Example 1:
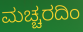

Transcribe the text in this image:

ಮಚ್ಚರದಿಂ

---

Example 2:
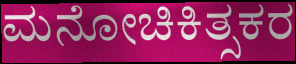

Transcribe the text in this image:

ಮನೋಚಿಕಿತ್ಸಕರ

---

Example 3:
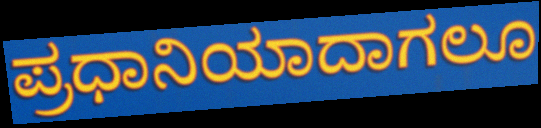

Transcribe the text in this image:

ಪ್ರಧಾನಿಯಾದಾಗಲೂ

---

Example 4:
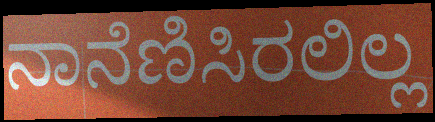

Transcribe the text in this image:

ನಾನೆಣಿಸಿರಲಿಲ್ಲ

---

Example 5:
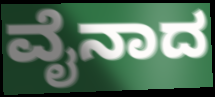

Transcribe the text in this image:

ವೈನಾದ